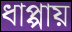
ধাপ্পায়